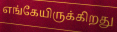
எங்கேயிருக்கிறது